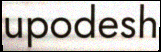
upodesh